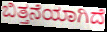
ಬಿತ್ತನೆಯಾಗಿದೆ